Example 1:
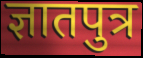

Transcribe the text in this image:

ज्ञातपुत्र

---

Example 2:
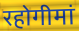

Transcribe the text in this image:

रहोगीमां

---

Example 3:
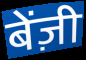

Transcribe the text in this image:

बेंज़ी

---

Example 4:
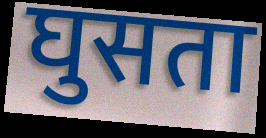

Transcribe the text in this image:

घुसता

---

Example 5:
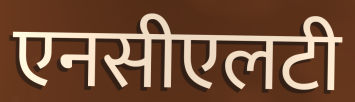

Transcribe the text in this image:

एनसीएलटी